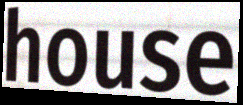
house